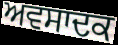
ਅਵਸਾਦਕ